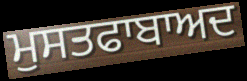
ਮੁਸਤਫਾਬਾਅਦ